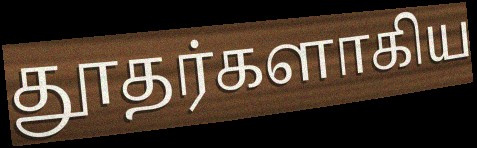
தூதர்களாகிய